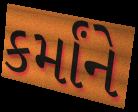
કર્માંને